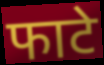
फाटे